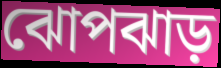
ঝোপঝাড়